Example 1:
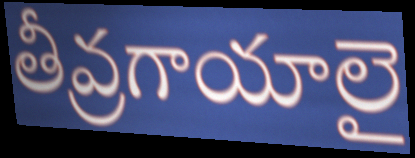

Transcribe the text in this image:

తీవ్రగాయాలై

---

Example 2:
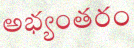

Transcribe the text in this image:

అభ్యంతరం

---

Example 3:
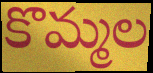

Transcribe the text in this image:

కొమ్మల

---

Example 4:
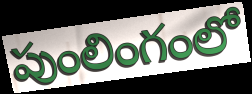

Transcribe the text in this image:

పుంలింగంలో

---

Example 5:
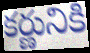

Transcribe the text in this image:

కర్ణునికి